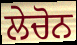
ਲੇਚੋਨ